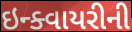
ઇન્ક્વાયરીની